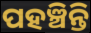
ପହଞ୍ଚିନ୍ତି